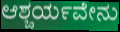
ಆಶ್ಚರ್ಯವೇನು